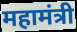
महामंत्री